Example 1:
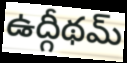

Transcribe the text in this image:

ఉద్గీథమ్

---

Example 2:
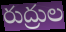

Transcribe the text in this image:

రుద్రుల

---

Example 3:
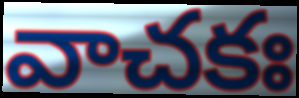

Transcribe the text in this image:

వాచకః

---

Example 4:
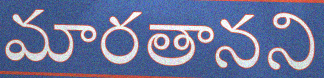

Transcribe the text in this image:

మారతానని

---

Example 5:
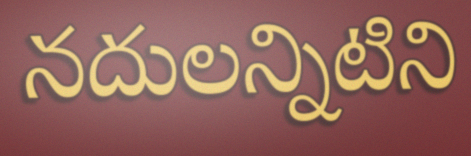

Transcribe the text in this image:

నదులన్నిటిని